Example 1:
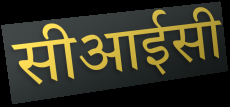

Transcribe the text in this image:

सीआईसी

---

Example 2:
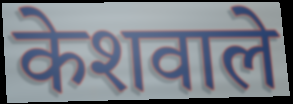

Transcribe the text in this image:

केशवाले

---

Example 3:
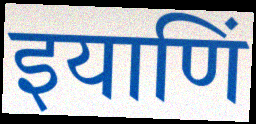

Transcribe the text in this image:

इयाणिं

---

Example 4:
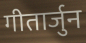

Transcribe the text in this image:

गीतार्जुन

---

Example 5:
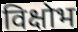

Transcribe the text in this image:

विक्षोभ